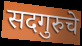
सदगुरुचे